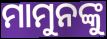
ମାମୁନଙ୍କୁ